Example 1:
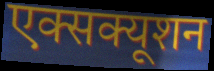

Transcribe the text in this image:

एक्सक्यूशन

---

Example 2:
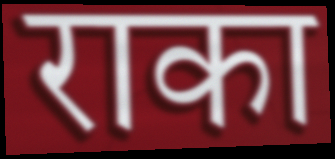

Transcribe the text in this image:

राका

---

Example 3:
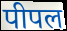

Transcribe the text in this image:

पीपल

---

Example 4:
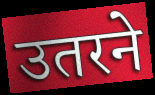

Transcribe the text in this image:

उतरने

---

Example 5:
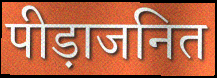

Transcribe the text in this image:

पीड़ाजनित